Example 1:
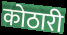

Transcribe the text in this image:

कोठारी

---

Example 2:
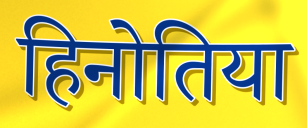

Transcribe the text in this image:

हिनोतिया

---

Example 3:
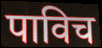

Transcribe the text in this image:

पाविच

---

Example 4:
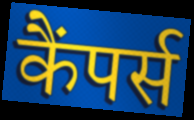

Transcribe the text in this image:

कैंपर्स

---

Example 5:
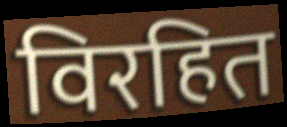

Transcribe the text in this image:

विरहित